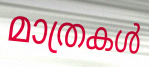
മാത്രകൾ